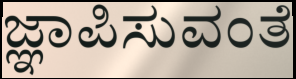
ಜ್ಞಾಪಿಸುವಂತೆ